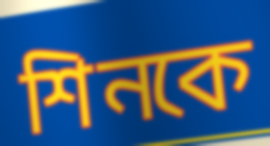
শিনকে